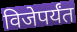
विजेपर्यंत